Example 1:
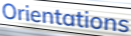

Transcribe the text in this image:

Orientations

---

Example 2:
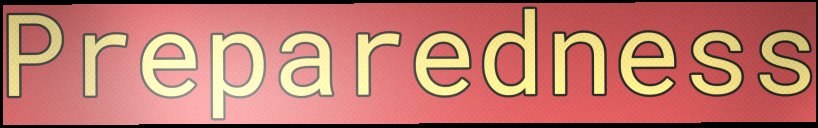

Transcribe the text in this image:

Preparedness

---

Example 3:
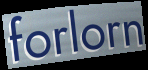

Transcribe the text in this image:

forlorn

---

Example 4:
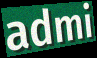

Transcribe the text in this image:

admi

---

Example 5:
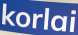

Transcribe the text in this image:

korlai